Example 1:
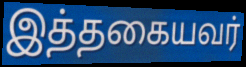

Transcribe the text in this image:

இத்தகையவர்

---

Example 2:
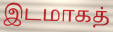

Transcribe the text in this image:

இடமாகத்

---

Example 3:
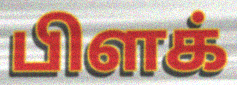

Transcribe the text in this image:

பிளக்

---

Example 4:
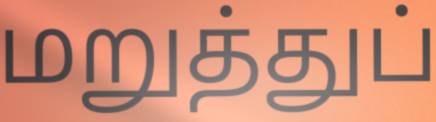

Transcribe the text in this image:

மறுத்துப்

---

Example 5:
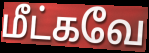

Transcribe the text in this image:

மீட்கவே